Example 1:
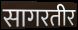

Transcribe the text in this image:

सागरतीर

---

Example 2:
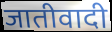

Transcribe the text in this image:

जातीवादी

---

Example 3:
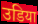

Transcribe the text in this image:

उडिया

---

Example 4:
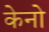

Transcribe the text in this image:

केनो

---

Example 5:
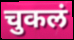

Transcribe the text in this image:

चुकलं